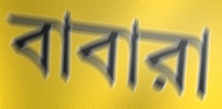
বাবারা